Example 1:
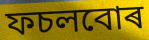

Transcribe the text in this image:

ফচলবোৰ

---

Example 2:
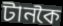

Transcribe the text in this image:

টানকৈ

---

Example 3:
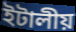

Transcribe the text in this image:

ইটালীয়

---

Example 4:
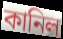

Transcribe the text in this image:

কানিল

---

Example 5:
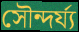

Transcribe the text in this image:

সৌন্দৰ্য্য